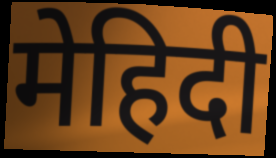
मेहिदी